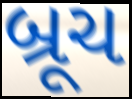
બ્રૂચ